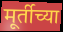
मूर्तीच्या